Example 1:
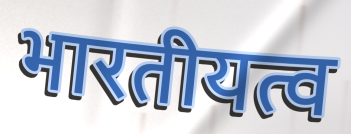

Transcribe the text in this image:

भारतीयत्व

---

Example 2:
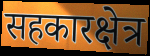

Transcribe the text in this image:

सहकारक्षेत्र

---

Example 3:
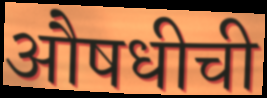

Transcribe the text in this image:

औषधीची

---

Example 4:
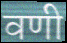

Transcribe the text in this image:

वणी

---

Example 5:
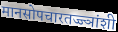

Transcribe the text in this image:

मानसोपचारतज्ज्ञांशी